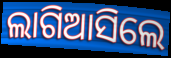
ଲାଗିଆସିଲେ